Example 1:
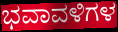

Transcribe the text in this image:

ಭವಾವಳಿಗಳ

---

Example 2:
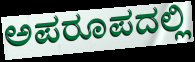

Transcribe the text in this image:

ಅಪರೂಪದಲ್ಲಿ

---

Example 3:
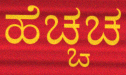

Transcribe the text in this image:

ಹೆಚ್ಚಚ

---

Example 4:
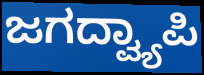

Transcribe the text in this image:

ಜಗದ್ವ್ಯಾಪಿ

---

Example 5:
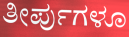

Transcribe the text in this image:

ತೀರ್ಪುಗಳೂ